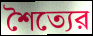
শৈত্যের